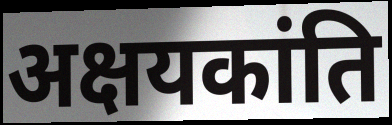
अक्षयकांति